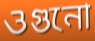
ওগুনো